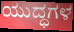
ಯುದ್ಧಗಳ